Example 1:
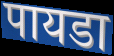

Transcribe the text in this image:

पायडा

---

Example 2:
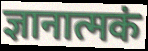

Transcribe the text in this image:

ज्ञानात्मकं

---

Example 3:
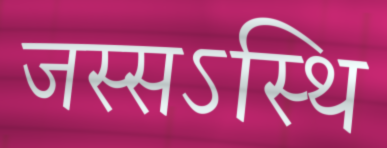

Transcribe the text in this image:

जस्सऽस्थि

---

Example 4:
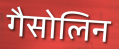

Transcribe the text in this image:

गैसोलिन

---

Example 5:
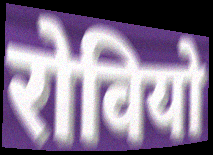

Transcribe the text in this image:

रोवियो